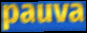
pauva